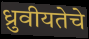
ध्रुवीयतेचे